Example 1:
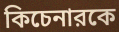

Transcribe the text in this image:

কিচেনারকে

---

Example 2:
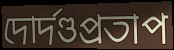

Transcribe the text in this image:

দোর্দণ্ডপ্রতাপ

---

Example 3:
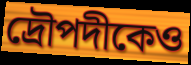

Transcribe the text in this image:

দ্রৌপদীকেও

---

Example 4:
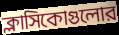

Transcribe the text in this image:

ক্লাসিকোগুলোর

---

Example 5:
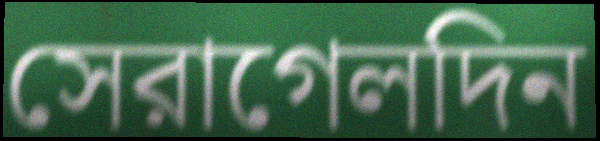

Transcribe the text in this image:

সেরাগেলদিন